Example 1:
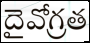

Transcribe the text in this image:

దైవోగ్రత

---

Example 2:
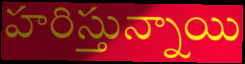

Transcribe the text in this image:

హరిస్తున్నాయి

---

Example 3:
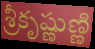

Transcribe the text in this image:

శ్రీకృష్ణుణ్ణి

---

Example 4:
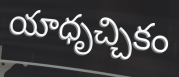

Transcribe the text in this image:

యాధృచ్చికం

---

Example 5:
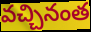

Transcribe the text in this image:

వచ్చినంత